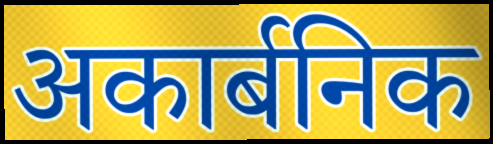
अकार्बनिक